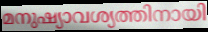
മനുഷ്യാവശ്യത്തിനായി